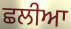
ਛਲੀਆ